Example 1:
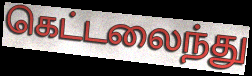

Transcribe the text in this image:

கெட்டலைந்து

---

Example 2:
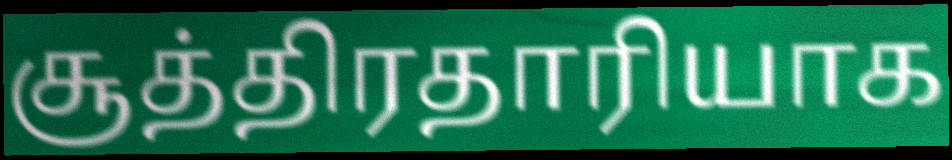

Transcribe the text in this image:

சூத்திரதாரியாக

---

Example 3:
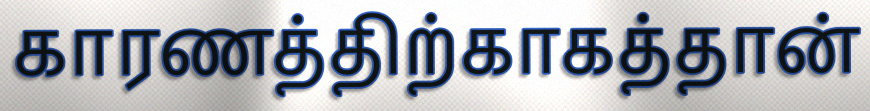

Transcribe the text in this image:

காரணத்திற்காகத்தான்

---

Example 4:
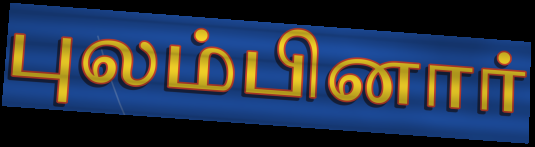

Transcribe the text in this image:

புலம்பினார்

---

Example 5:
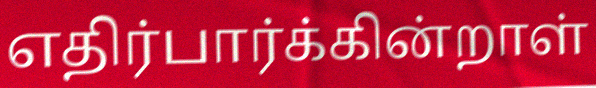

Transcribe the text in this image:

எதிர்பார்க்கின்றாள்